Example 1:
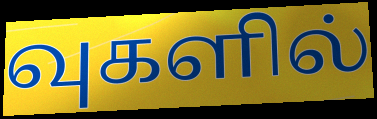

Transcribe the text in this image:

வுகளில்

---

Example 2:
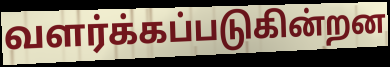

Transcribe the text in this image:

வளர்க்கப்படுகின்றன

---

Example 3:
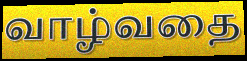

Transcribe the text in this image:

வாழ்வதை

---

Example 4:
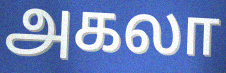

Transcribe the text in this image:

அகலா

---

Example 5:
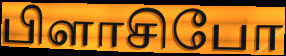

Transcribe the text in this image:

பிளாசிபோ